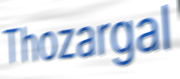
Thozargal